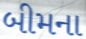
બીમના